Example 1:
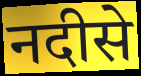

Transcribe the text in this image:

नदीसे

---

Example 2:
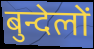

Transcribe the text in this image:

बुन्देलों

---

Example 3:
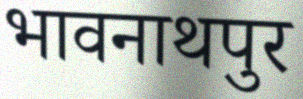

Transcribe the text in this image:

भावनाथपुर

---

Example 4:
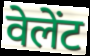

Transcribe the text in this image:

वेलेंट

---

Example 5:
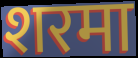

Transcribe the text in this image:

शरमा